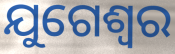
ଯୁଗେଶ୍ଵର